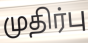
முதிர்பு